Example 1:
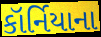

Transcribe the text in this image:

કૉર્નિયાના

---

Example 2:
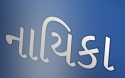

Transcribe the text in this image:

નાયિકા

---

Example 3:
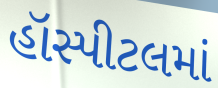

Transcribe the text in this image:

હૉસ્પીટલમાં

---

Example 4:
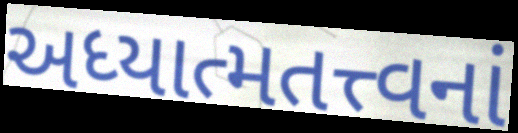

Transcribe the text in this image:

અધ્યાત્મતત્ત્વનાં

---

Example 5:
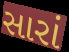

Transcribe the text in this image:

સારાં